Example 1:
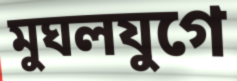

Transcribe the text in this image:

মুঘলযুগে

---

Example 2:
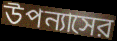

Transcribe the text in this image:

উপন্যাসের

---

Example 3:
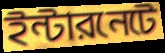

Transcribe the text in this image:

ইন্টারনেটে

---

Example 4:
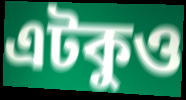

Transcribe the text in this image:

এটকুও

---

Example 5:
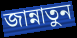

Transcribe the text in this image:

জান্নাতুন